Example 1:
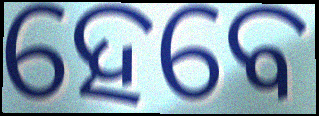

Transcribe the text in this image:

ହେବେ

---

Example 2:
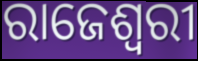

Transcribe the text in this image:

ରାଜେଶ୍ଵରୀ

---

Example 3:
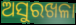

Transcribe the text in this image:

ଅସୁରଖଳା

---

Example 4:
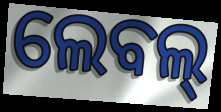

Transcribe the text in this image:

ଲେବଲ୍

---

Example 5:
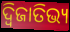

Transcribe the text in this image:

ଦ୍ବିଜାତିଭ୍ୟ